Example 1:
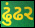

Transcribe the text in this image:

ઢુંઢર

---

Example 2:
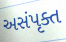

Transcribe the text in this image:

અસંપૃક્ત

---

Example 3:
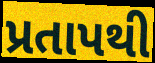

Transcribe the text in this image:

પ્રતાપથી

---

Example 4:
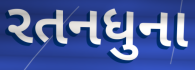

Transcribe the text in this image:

રતનધુના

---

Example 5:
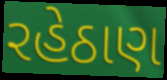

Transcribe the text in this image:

રહેઠાણ